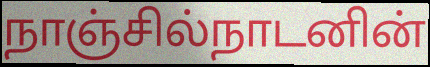
நாஞ்சில்நாடனின்